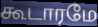
கூடாரமே